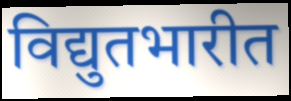
विद्युतभारीत